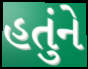
હતુંને